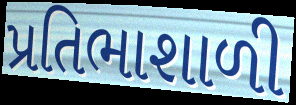
પ્રતિભાશાળી